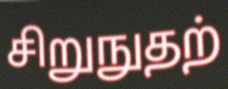
சிறுநுதற்